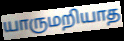
யாருமறியாத